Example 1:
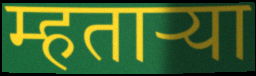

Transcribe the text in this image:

म्हताऱ्या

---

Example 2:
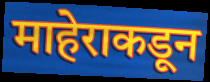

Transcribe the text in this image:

माहेराकडून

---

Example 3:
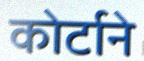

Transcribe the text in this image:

कोर्टाने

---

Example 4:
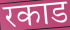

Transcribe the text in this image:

रकाड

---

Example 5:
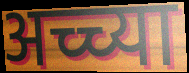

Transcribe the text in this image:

अच्च्या